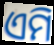
ଏମି